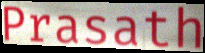
Prasath